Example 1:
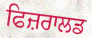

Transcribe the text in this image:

ਫਿਜ਼ਰਾਲਡ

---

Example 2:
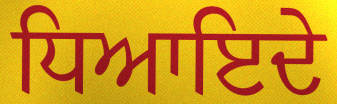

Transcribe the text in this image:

ਧਿਆਇਦੇ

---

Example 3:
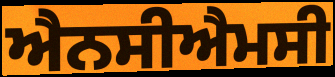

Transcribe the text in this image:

ਐਨਸੀਐਮਸੀ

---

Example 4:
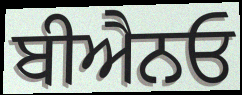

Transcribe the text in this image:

ਬੀਐਨਓ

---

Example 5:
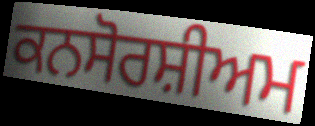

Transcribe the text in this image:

ਕਨਸੋਰਸ਼ੀਅਮ